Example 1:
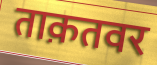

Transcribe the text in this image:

ताक़तवर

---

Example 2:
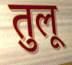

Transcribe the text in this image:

तुलू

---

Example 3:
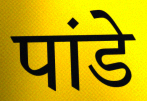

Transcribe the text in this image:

पांडे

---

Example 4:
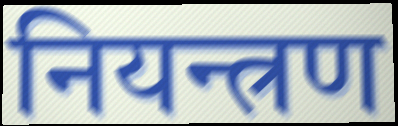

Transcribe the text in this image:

नियन्त्रण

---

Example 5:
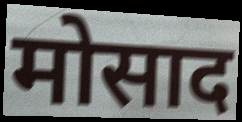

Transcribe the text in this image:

मोसाद